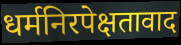
धर्मनिरपेक्षतावाद